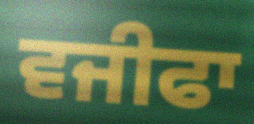
ਵਜੀਫਾ